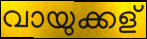
വായുക്കള്